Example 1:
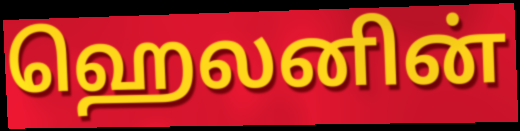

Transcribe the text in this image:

ஹெலனின்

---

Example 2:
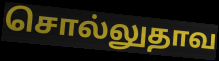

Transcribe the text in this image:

சொல்லுதாவ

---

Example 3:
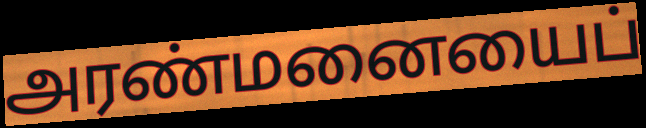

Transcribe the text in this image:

அரண்மனையைப்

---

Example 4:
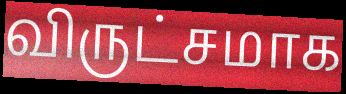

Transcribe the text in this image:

விருட்சமாக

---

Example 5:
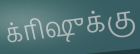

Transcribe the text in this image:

க்ரிஷுக்கு